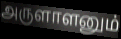
அருளாளனும்